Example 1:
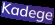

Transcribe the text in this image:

Kadege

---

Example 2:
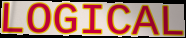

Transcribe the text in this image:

LOGICAL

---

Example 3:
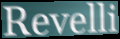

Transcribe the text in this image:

Revelli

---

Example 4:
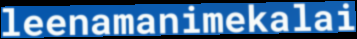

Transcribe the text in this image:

leenamanimekalai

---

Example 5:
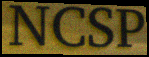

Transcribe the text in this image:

NCSP